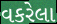
વકરેલા